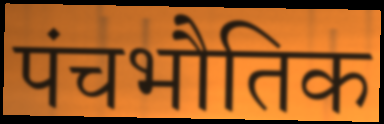
पंचभौतिक